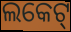
ଲକେଟ୍